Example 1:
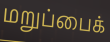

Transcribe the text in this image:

மறுப்பைக்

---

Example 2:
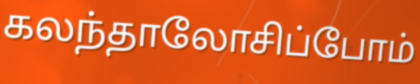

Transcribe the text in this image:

கலந்தாலோசிப்போம்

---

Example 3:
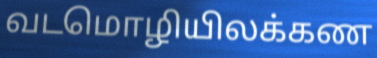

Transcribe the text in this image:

வடமொழியிலக்கண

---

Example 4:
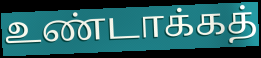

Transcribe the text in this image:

உண்டாக்கத்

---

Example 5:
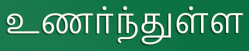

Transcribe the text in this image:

உணர்ந்துள்ள